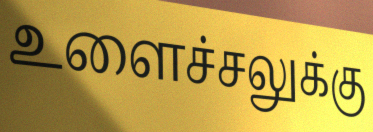
உளைச்சலுக்கு